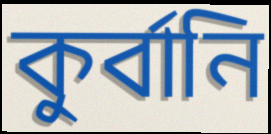
কুর্বানি